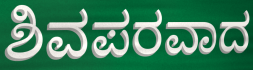
ಶಿವಪರವಾದ